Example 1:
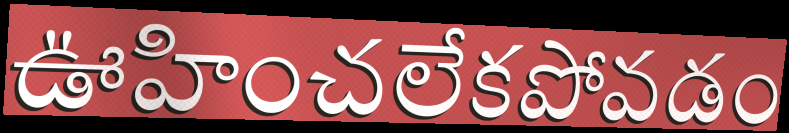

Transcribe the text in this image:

ఊహించలేకపోవడం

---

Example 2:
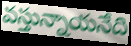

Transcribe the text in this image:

వస్తున్నాయనేది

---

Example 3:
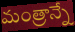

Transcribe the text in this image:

మంత్రాన్నే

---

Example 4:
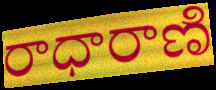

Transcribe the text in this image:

రాధారాణి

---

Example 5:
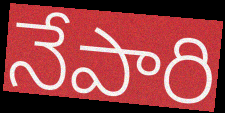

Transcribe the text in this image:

నేపారి